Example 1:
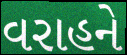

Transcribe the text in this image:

વરાહને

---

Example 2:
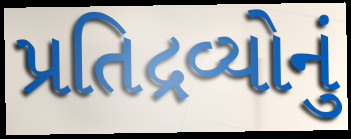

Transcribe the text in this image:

પ્રતિદ્રવ્યોનું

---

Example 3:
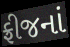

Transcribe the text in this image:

ફ્રીજનાં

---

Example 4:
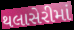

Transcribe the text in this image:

થલાસેરીમાં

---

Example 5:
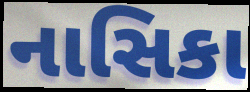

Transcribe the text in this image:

નાસિકા